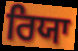
ਰਿਯਾ